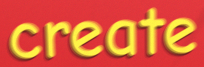
create